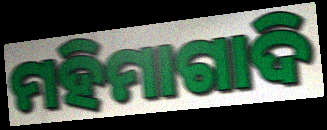
ମହିମାଗାଦି